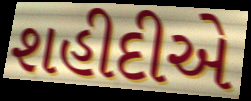
શહીદીએ